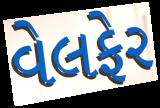
વેલફેર